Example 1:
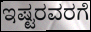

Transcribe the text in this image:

ಇಷ್ಟರವರಗೆ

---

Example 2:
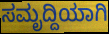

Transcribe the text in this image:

ಸಮೃದ್ದಿಯಾಗಿ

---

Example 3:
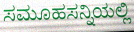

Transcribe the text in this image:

ಸಮೂಹಸನ್ನಿಯಲ್ಲಿ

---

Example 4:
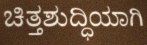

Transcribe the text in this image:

ಚಿತ್ತಶುದ್ಧಿಯಾಗಿ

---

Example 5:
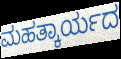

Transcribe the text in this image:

ಮಹತ್ಕಾರ್ಯದ